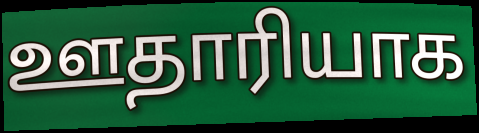
ஊதாரியாக